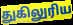
துகிலுரிய